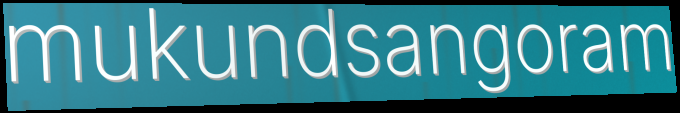
mukundsangoram